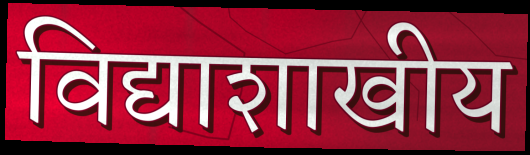
विद्याशाखीय